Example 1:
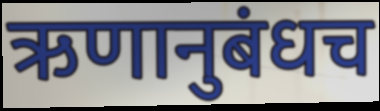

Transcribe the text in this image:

ऋणानुबंधच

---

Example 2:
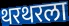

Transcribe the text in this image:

थरथरला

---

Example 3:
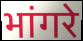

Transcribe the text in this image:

भांगरे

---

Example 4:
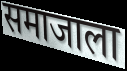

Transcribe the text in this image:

समाजाला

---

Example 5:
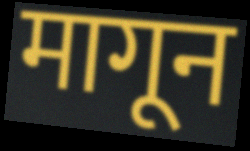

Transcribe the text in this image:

मागून